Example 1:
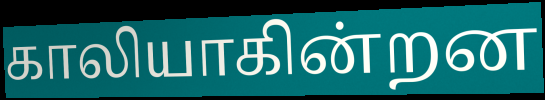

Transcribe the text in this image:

காலியாகின்றன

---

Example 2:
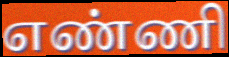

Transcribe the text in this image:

எண்ணி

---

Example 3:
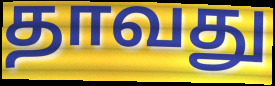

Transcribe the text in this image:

தாவது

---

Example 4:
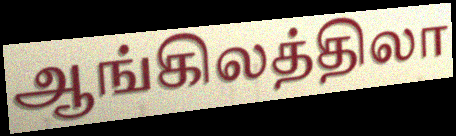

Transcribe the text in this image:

ஆங்கிலத்திலா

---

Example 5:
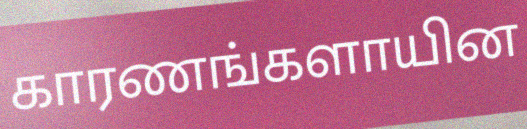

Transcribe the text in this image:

காரணங்களாயின